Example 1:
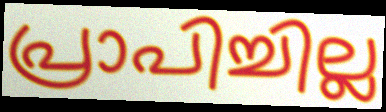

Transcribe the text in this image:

പ്രാപിച്ചില്ല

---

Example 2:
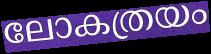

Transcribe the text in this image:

ലോകത്രയം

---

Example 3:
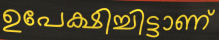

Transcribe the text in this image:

ഉപേക്ഷിച്ചിട്ടാണ്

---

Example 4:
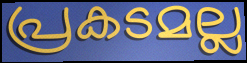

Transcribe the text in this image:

പ്രകടമല്ല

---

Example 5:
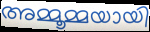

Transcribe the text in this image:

അമ്മൂമ്മയായി